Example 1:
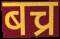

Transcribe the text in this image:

बच्र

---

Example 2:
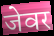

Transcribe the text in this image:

जेवर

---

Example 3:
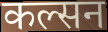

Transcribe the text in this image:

कल्सन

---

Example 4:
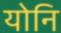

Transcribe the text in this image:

योनि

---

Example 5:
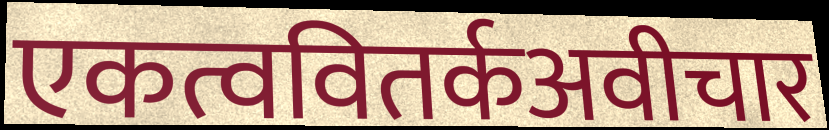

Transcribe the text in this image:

एकत्ववितर्कअवीचार